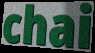
chai